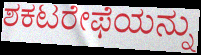
ಶಕಟರೇಫೆಯನ್ನು